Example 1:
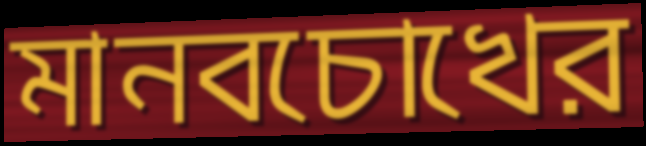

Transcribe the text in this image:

মানবচোখের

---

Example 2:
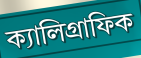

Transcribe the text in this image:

ক্যালিগ্রাফিক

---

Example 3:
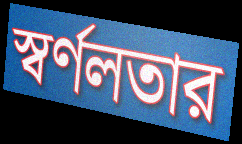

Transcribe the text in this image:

স্বর্ণলতার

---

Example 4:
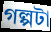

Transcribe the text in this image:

গল্পটা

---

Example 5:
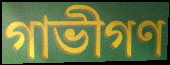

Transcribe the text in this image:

গাভীগণ